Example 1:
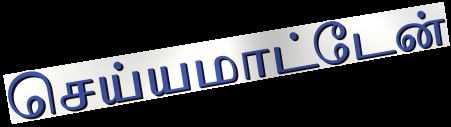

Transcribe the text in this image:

செய்யமாட்டேன்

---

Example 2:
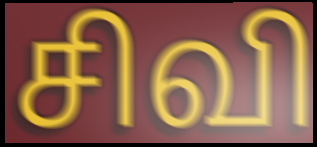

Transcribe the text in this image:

சிவி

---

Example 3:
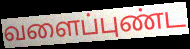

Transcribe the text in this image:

வளைப்புண்ட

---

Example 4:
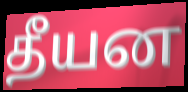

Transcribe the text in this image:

தீயன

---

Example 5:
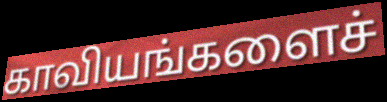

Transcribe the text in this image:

காவியங்களைச்